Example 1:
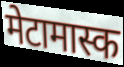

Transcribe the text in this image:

मेटामास्क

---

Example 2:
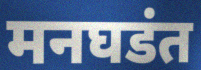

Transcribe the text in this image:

मनघडंत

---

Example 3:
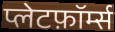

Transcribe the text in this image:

प्लेटफ़ॉर्म्स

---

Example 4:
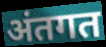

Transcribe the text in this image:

अंतगत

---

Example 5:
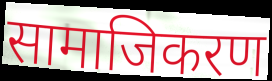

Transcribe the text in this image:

सामाजिकरण